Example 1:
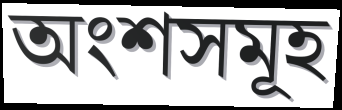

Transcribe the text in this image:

অংশসমূহ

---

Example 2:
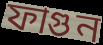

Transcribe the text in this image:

ফাগুন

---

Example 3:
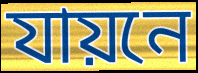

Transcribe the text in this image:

যায়নে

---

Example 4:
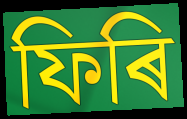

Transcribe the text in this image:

ফিৰি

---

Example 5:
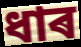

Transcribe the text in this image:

ধাৰ